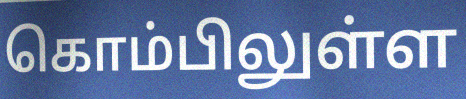
கொம்பிலுள்ள